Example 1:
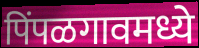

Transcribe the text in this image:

पिंपळगावमध्ये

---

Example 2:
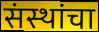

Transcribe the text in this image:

संस्थांचा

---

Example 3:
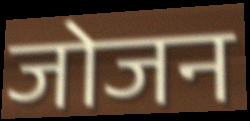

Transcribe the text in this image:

जोजन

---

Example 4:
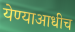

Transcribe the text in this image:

येण्याआधीच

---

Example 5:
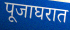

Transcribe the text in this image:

पूजाघरात